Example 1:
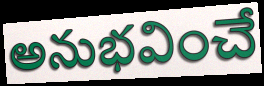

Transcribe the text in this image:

అనుభవించే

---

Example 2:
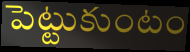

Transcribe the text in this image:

పెట్టుకుంటం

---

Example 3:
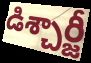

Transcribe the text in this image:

డిశ్చార్జీ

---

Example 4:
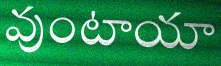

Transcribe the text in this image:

వుంటాయా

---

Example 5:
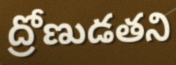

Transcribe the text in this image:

ద్రోణుడతని